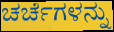
ಚರ್ಚೆಗಳನ್ನು